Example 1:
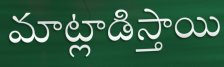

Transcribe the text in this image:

మాట్లాడిస్తాయి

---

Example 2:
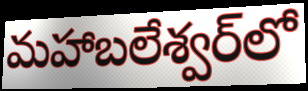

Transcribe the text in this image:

మహాబలేశ్వర్‌లో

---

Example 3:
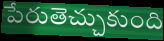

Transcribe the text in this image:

పేరుతెచ్చుకుంది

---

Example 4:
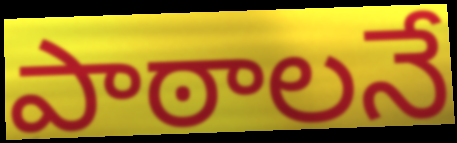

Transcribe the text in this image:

పాఠాలనే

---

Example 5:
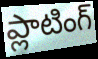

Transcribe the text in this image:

ప్లాటింగ్